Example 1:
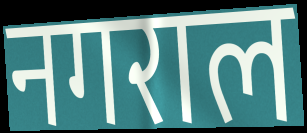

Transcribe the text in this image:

नगराल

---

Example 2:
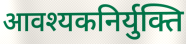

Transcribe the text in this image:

आवश्यकनिर्युक्ति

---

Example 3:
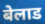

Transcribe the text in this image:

बेलाड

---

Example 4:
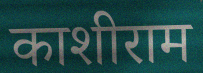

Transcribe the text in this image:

काशीराम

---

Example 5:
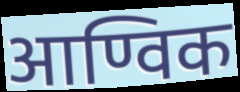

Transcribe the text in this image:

आण्विक